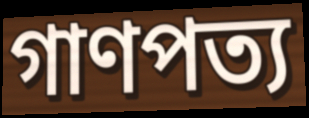
গাণপত্য